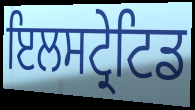
ਇਲਸਟ੍ਰੇਟਿਡ